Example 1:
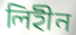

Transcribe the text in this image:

লিহীন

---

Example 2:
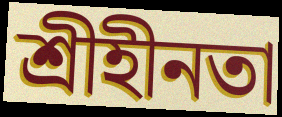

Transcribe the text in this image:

শ্রীহীনতা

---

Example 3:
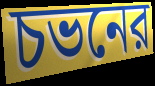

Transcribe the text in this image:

চভনের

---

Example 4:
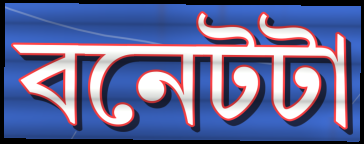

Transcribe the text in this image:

বনেটটা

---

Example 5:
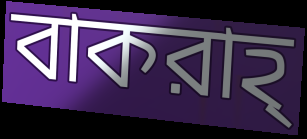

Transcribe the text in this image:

বাকরাহ্